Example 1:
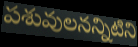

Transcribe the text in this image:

పశువులనన్నిటిని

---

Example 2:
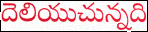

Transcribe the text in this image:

దెలియుచున్నది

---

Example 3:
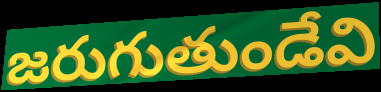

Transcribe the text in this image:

జరుగుతుండేవి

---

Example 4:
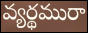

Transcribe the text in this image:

వ్యర్థమురా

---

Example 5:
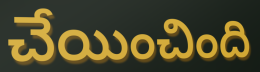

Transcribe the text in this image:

చేయించింది